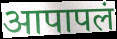
आपापलं